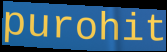
purohit